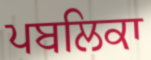
ਪਬਲਿਕਾ